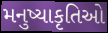
મનુષ્યાકૃતિઓ